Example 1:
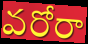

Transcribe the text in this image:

వరోరా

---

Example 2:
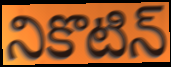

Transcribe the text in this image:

నికొటిన్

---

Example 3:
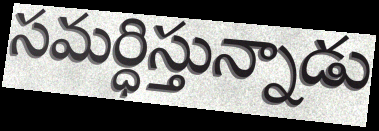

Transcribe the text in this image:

సమర్ధిస్తున్నాడు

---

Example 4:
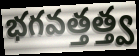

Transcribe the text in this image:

భగవత్తత్త్వ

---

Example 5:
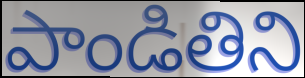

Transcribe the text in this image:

పాండితిని